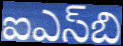
ఐఎస్‌బి